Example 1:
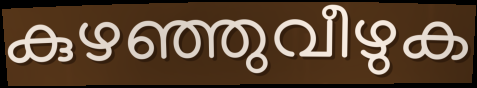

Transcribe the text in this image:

കുഴഞ്ഞുവീഴുക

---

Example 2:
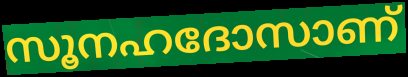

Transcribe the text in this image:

സൂനഹദോസാണ്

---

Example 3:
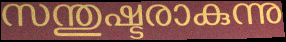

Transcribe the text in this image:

സന്തുഷ്ടരാകുന്നു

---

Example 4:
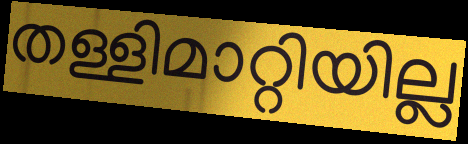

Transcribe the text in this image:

തള്ളിമാറ്റിയില്ല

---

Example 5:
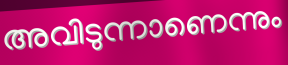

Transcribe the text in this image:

അവിടുന്നാണെന്നും